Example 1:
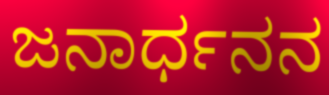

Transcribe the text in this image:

ಜನಾರ್ಧನನ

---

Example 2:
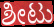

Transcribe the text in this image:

ಶೀಟು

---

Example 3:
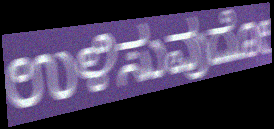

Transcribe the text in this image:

ಉಳಿಸುವುದೋ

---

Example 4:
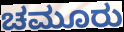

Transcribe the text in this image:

ಚಮೂರು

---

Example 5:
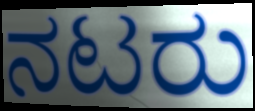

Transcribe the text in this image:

ನಟರು